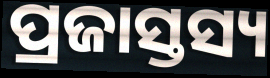
ପ୍ରଜାସ୍ତସ୍ୟ